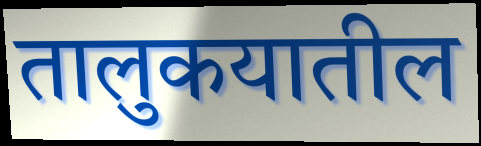
तालुकयातील